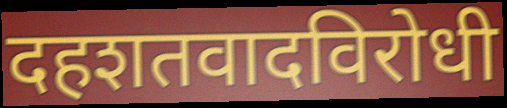
दहशतवादविरोधी